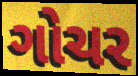
ગોચર